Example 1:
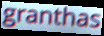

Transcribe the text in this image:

granthas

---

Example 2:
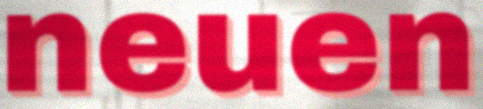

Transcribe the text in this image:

neuen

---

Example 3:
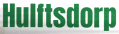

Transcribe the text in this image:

Hulftsdorp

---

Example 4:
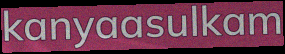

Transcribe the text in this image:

kanyaasulkam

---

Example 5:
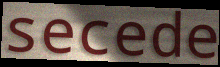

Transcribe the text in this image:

secede